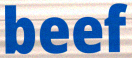
beef